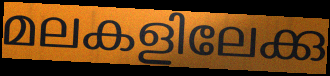
മലകളിലേക്കു